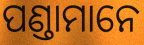
ପଣ୍ଡାମାନେ